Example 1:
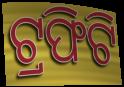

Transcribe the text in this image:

ଟ୍ରଫିଟି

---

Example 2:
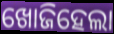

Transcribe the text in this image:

ଖୋଜିହେଲା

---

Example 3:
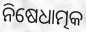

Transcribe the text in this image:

ନିଷେଧାତ୍ମକ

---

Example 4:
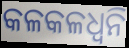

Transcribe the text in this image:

କଳକଳଧ୍ଵନି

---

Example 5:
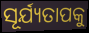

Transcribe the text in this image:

ସୂର୍ଯ୍ୟତାପକୁ